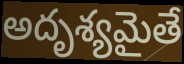
అదృశ్యమైతే